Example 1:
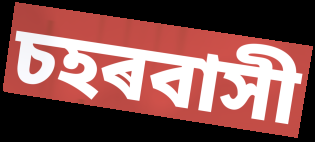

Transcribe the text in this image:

চহৰবাসী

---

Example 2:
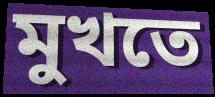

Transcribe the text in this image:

মুখতে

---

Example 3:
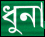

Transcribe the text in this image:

ধুনা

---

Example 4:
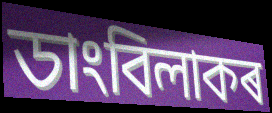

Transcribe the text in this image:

ডাংবিলাকৰ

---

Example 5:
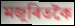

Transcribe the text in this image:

মজুৰিতকৈ